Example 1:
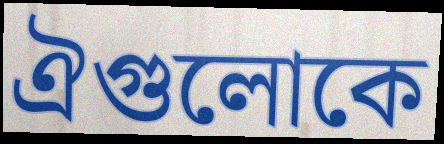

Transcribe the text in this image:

ঐগুলোকে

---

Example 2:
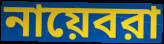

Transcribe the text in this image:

নায়েবরা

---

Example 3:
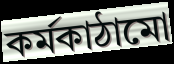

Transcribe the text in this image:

কর্মকাঠামো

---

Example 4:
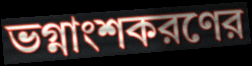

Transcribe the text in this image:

ভগ্নাংশকরণের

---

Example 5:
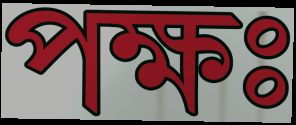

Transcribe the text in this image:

পক্ষঃ